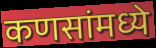
कणसांमध्ये